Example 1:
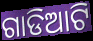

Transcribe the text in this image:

ଗାଡିଆଟି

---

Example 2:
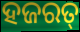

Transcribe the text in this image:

ହଜରତ୍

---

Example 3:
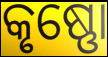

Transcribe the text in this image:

କୃଷ୍ଣୋ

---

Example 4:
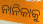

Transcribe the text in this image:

ନାନିକାକୁ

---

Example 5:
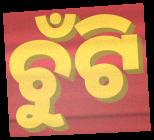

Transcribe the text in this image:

ଚୁଁଟି